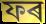
ফৰ